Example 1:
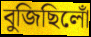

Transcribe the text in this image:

বুজিছিলোঁ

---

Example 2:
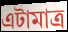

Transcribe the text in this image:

এটামাত্ৰ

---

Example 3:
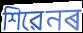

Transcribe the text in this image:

শিৱেনৰ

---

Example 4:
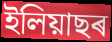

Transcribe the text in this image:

ইলিয়াছৰ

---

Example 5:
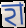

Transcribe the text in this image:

হা